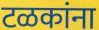
टळकांना